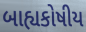
બાહ્યકોષીય